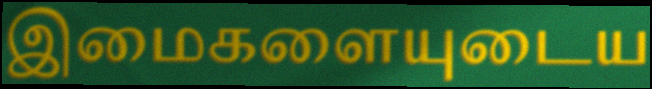
இமைகளையுடைய